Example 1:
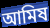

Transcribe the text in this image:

আমিষ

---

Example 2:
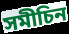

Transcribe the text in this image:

সমীচিন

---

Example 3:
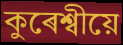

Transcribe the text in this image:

কুৰেশ্বীয়ে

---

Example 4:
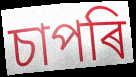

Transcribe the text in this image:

চাপৰি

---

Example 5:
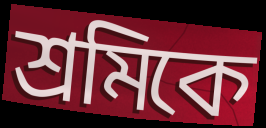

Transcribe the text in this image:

শ্ৰমিকে